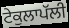
ਟੇਕੁਲਾਪੱਲੀ